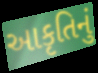
આકૃતિનું